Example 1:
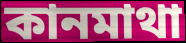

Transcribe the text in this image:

কানমাথা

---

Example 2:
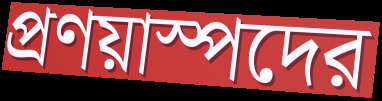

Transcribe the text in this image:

প্রণয়াস্পদের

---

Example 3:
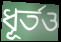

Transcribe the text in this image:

ধূর্তও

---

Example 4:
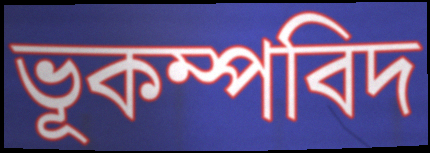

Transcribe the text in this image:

ভূকম্পবিদ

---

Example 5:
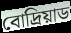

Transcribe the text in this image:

বোদ্রিয়াড